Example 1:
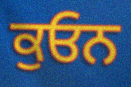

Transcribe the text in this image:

ਕੁਓਨ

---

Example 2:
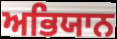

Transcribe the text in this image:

ਅਭਿਯਾਨ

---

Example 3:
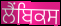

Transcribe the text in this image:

ਲੈਂਬਿਕਸ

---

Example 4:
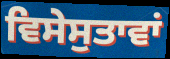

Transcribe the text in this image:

ਵਿਸੇਸੁਤਾਵਾਂ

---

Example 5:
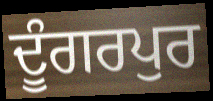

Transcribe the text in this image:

ਦੂੰਗਰਪੁਰ